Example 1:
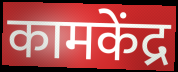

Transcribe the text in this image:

कामकेंद्र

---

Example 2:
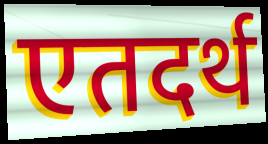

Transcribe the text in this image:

एतदर्थ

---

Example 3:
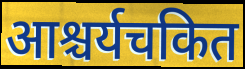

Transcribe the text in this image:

आश्चर्यचकित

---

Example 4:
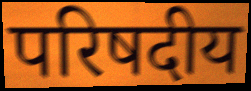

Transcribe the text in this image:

परिषदीय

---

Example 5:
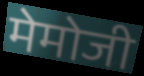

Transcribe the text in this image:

मेमोजी